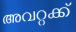
അവറ്റക്ക്